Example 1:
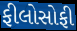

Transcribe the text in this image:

ફીલોસોફી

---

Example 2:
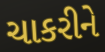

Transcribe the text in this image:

ચાકરીને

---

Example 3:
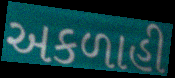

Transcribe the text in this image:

અકળાહી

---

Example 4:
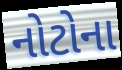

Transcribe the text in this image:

નોટોના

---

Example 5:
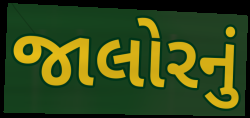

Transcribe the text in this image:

જાલોરનું